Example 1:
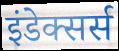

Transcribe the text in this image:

इंडेक्सर्स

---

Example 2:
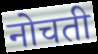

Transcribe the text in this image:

नोचती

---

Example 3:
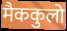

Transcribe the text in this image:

मैककुलो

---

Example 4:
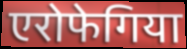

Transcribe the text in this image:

एरोफेगिया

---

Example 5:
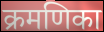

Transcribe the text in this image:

क्रमणिका